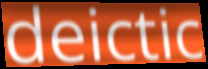
deictic